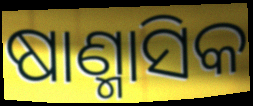
ଷାଣ୍ମାସିକ